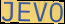
JEVO